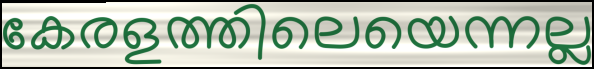
കേരളത്തിലെയെന്നല്ല